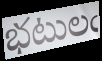
భటులఁ